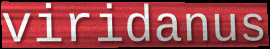
viridanus